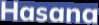
Hasana